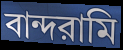
বান্দরামি